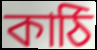
কাঠি